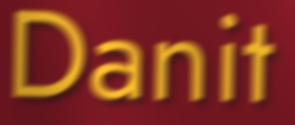
Danit